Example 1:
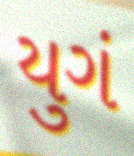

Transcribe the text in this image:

યુગં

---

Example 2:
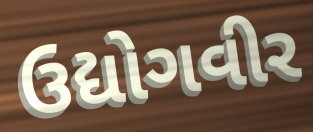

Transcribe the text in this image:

ઉદ્યોગવીર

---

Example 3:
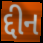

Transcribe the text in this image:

દ્દીન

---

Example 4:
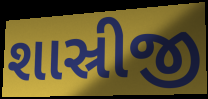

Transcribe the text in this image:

શાસ્રીજી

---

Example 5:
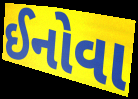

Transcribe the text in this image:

ઈનોવા